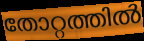
തോറ്റത്തിൽ